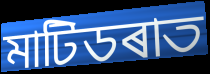
মাটিডৰাত